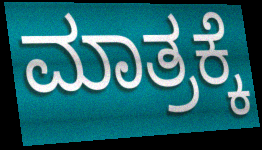
ಮಾತ್ರಕ್ಕೆ